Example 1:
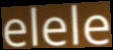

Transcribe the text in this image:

elele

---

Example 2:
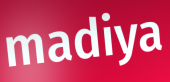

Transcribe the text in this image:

madiya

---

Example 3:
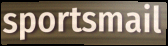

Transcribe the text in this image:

sportsmail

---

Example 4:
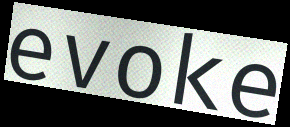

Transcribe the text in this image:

evoke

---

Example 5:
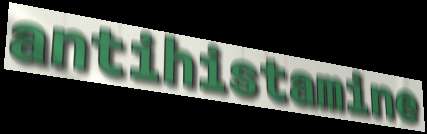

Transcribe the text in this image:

antihistamine